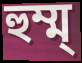
হুম্ম্